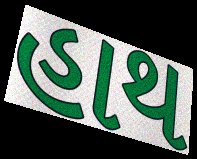
હાથ